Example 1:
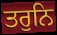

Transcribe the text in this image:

ਤਰੁਨਿ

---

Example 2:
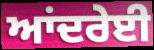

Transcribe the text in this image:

ਆਂਦਰੇਈ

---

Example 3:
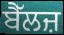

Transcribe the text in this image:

ਬੈੱਲਜ਼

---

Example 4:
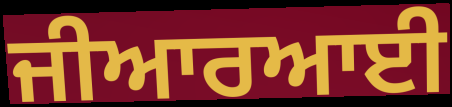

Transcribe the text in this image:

ਜੀਆਰਆਈ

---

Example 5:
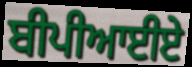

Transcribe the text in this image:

ਬੀਪੀਆਈਏ